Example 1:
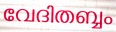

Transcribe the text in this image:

വേദിതബ്ബം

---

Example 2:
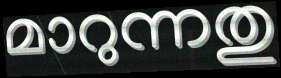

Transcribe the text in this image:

മാറുന്നതു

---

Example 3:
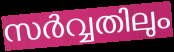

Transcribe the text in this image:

സർവ്വതിലും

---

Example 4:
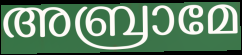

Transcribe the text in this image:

അബ്രാമേ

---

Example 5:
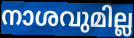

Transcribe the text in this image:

നാശവുമില്ല